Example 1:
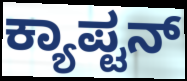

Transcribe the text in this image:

ಕ್ಯಾಪ್ಟನ್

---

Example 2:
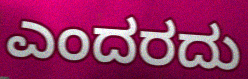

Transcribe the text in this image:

ಎಂದರದು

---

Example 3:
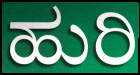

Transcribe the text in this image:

ಹುರಿ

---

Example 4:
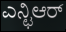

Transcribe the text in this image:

ಎನ್ಟಿಆರ್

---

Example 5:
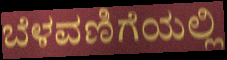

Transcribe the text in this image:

ಬೆಳವಣಿಗೆಯಲ್ಲಿ